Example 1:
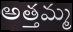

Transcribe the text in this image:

అత్తమ్మ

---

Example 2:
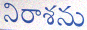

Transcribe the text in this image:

నిరాశను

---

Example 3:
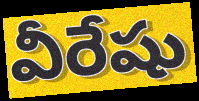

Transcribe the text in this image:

వీరేషు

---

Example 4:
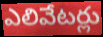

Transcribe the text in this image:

ఎలివేటర్లు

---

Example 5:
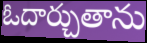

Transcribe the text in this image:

ఓదార్చుతాను